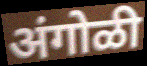
अंगोळी